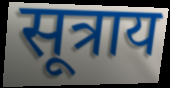
सूत्राय